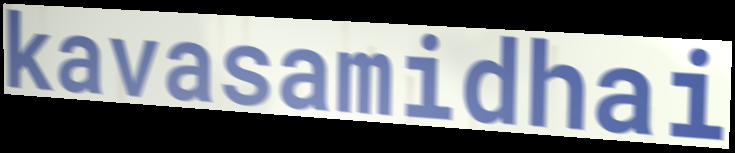
kavasamidhai